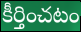
కీర్తించటం